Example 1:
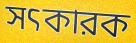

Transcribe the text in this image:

সৎকারক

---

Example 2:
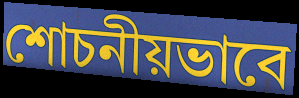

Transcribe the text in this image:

শোচনীয়ভাবে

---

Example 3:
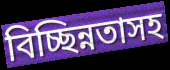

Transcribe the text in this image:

বিচ্ছিন্নতাসহ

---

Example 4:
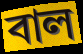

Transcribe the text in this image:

বাল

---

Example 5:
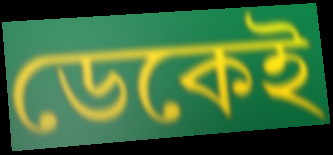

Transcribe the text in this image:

ডেকেই